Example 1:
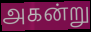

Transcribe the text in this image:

அகன்று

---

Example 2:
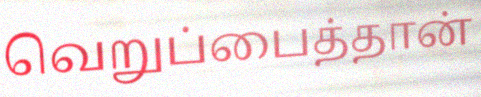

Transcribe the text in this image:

வெறுப்பைத்தான்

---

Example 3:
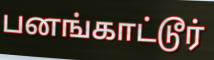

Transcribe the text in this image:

பனங்காட்டூர்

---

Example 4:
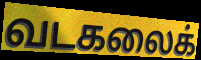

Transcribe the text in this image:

வடகலைக்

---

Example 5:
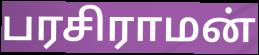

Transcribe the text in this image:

பரசிராமன்